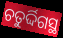
ଚତୁର୍ଦ୍ଦିଗସ୍ଥ